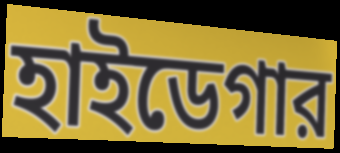
হাইডেগার